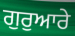
ਗੁਰੁਆਰੇ